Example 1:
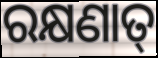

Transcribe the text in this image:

ରକ୍ଷଣାତ୍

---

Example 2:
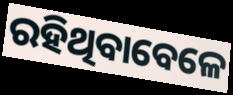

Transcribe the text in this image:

ରହିଥିବାବେଳେ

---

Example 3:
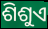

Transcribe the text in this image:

ଶିଶୁଏ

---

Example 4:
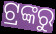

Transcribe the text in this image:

ଟ୍ରଙ୍କରୁ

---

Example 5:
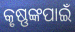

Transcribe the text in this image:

କୃଷ୍ଣଙ୍କପାଇଁ